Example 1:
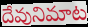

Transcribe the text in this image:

దేవునిమాట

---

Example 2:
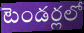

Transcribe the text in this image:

టెండర్లలో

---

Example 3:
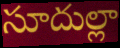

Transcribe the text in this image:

సూదుల్లా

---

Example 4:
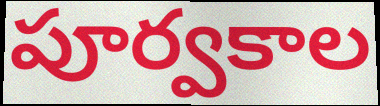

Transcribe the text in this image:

పూర్వకాల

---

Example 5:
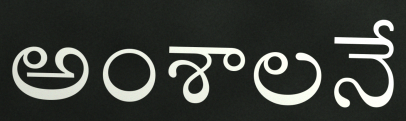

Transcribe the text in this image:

అంశాలనే